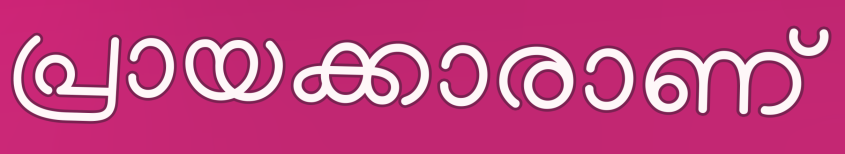
പ്രായക്കാരാണ്